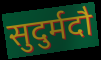
सुदुर्मदौ